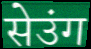
सेउंग